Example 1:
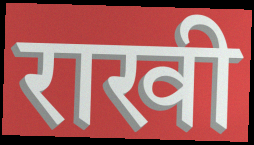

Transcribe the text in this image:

राखी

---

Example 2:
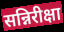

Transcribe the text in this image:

सन्निरीक्षा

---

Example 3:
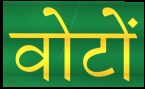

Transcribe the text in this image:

वोटों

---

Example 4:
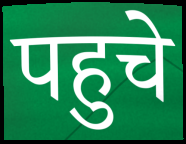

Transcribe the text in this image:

पहुचे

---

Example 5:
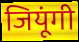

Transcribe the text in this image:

जियूंगी